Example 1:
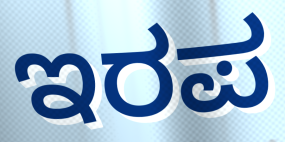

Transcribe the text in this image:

ಇರಪ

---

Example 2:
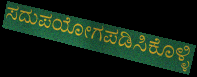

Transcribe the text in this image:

ಸದುಪಯೋಗಪಡಿಸಿಕೊಳ್ಳಿ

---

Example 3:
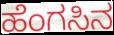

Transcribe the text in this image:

ಹೆಂಗಸಿನ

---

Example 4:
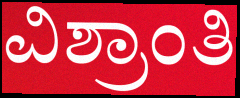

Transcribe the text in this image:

ವಿಶ್ರಾಂತಿ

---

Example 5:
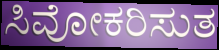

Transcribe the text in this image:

ಸಿವೋಕರಿಸುತ